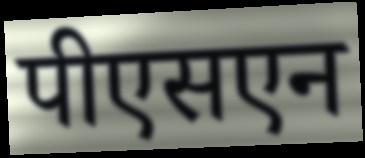
पीएसएन